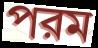
পরম